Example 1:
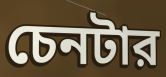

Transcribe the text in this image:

চেনটার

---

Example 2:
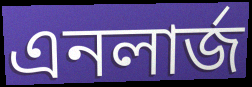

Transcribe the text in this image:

এনলার্জ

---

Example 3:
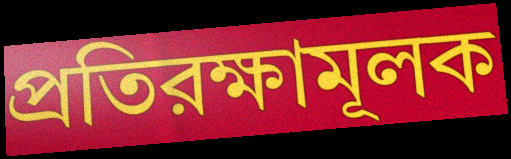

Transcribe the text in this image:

প্রতিরক্ষামূলক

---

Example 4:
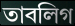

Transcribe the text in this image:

তাবলিগ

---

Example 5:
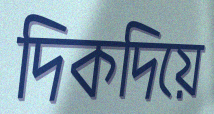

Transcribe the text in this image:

দিকদিয়ে